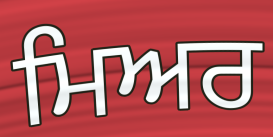
ਮਿਅਰ